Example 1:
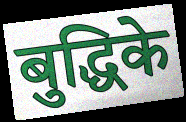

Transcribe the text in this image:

बुद्धिके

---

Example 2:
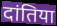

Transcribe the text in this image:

दांतिया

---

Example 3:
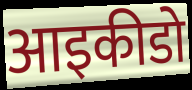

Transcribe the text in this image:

आइकीडो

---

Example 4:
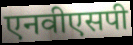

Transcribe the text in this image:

एनवीएसपी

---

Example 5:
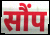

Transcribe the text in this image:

सौंप